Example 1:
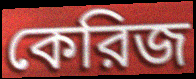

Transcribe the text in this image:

কেরিজ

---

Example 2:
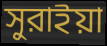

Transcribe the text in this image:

সুরাইয়া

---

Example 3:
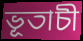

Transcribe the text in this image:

ভূতাচী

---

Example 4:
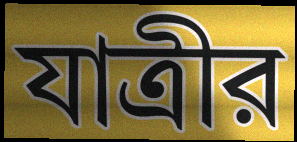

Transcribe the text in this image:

যাত্রীর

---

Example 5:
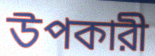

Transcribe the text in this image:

উপকারী